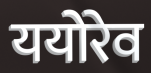
ययोरेव